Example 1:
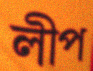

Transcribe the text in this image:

লীপ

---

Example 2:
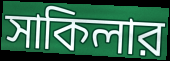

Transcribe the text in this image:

সাকিলার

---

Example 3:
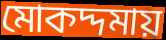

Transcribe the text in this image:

মোকদ্দমায়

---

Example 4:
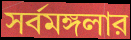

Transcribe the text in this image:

সর্বমঙ্গলার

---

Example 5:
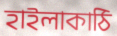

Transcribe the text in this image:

হাইলাকাঠি